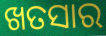
ଖତସାର